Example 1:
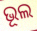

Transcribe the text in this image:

ଭୂଲ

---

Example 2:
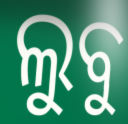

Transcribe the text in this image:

ଲୁବୁ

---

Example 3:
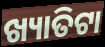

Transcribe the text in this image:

ଖ୍ୟାତିଟା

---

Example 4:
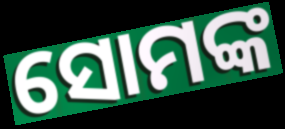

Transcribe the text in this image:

ସୋମଙ୍କ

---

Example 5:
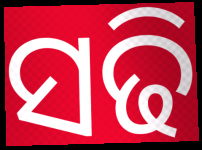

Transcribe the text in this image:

ସଢି